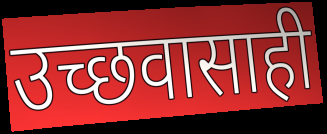
उच्छवासाही